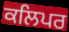
ਕਲਿਪਰ